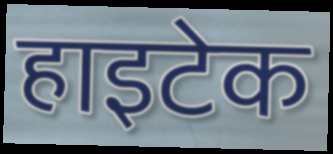
हाइटेक